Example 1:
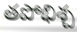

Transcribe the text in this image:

తపోభిశ్చ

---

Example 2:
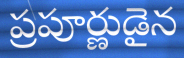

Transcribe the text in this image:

ప్రపూర్ణుడైన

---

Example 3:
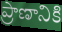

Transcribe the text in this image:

ప్రాణానికి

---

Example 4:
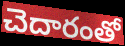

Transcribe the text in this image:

చెదారంతో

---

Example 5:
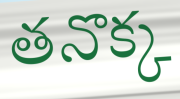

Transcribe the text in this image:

తనొక్క